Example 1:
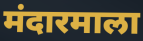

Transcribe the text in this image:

मंदारमाला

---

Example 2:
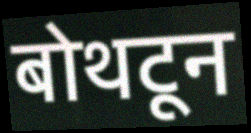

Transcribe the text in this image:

बोथटून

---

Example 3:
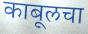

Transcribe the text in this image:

काबूलचा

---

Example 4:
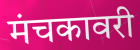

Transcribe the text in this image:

मंचकावरी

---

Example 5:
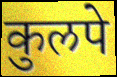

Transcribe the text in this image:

कुलपे